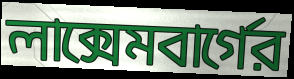
লাক্সেমবার্গের